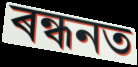
ৰন্ধনত